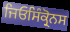
ਜਿਓਸਿੰਕ੍ਰੋਨਸ